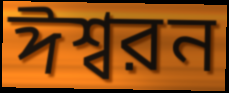
ঈশ্বরন